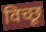
विच्छू